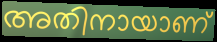
അതിനായാണ്